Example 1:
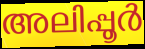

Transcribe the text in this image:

അലിപ്പൂർ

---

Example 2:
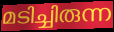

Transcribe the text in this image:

മടിച്ചിരുന്ന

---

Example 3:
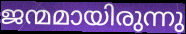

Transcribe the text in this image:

ജന്മമായിരുന്നു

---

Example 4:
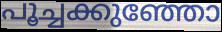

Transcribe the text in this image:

പൂച്ചക്കുഞ്ഞോ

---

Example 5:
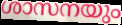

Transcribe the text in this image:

ശാസനയും